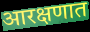
आरक्षणात